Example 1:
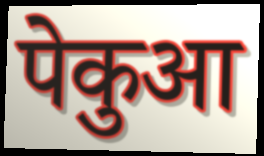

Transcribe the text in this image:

पेकुआ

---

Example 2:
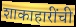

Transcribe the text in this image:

शाकाहारींची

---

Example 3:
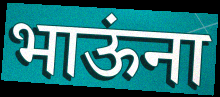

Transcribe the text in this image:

भाऊंना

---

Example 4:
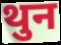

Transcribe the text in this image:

थुन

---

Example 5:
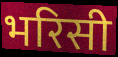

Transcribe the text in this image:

भरिसी